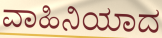
ವಾಹಿನಿಯಾದ